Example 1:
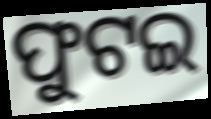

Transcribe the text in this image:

ଫୁଟଇ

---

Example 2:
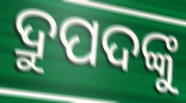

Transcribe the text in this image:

ଦ୍ରୁପଦଙ୍କୁ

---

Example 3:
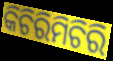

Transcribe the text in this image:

କିଚିରିମିଚିରି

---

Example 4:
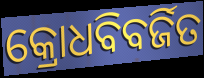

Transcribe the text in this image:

କ୍ରୋଧବିବର୍ଜିତ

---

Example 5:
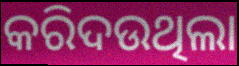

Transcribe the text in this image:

କରିଦଉଥିଲା